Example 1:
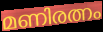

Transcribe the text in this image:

മണിരത്നം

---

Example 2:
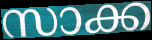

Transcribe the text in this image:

സാക്ക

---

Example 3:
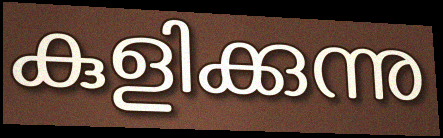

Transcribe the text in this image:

കുളിക്കുന്നു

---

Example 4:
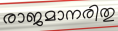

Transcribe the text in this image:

രാജമാനരിതു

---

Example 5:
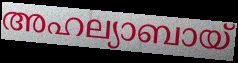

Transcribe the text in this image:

അഹല്യാബായ്